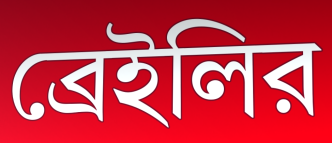
ব্রেইলির